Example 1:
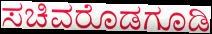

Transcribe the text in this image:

ಸಚಿವರೊಡಗೂಡಿ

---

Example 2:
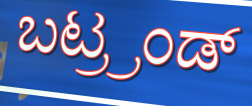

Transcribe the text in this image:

ಬಟ್ರ್ರಂಡ್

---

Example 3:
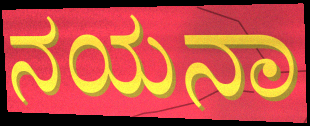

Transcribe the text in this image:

ನಯನಾ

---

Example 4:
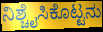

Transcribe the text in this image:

ನಿಶ್ಚೈಸಿಕೊಟ್ಟನು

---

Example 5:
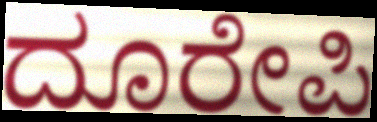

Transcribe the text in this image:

ದೂರೇಪಿ